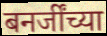
बनर्जींच्या